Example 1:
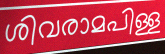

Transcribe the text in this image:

ശിവരാമപിള്ള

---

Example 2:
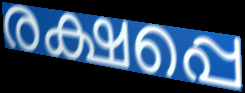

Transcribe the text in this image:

രക്ഷപ്പെ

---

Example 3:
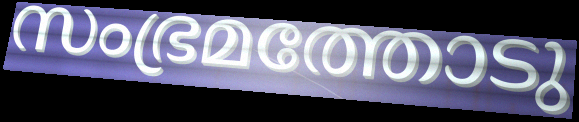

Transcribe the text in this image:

സംഭ്രമത്തോടു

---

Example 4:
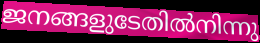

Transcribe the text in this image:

ജനങ്ങളുടേതിൽനിന്നു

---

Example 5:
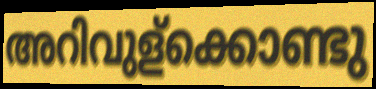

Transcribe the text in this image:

അറിവുള്ക്കൊണ്ടു